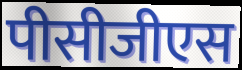
पीसीजीएस